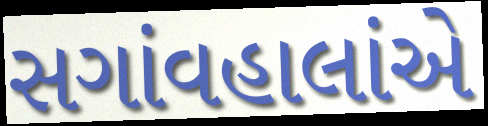
સગાંવહાલાંએ